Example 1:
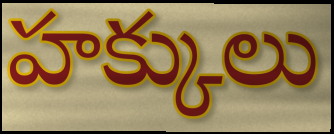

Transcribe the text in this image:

హక్కులు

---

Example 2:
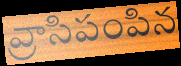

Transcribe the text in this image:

వ్రాసిపంపిన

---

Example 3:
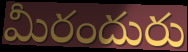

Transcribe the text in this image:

మీరందురు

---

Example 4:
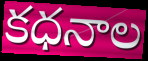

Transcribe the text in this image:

కధనాల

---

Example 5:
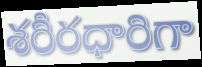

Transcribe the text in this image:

శరీరధారిగా